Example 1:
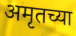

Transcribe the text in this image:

अमृतच्या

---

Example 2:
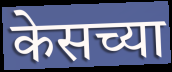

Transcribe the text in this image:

केसच्या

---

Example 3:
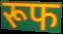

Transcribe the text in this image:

रूफ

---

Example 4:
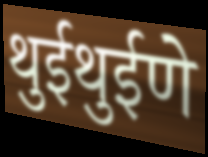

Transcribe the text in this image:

थुईथुईणे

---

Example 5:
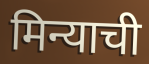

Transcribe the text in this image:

मिन्याची